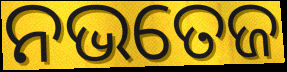
ନଭତେଜ